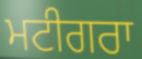
ਮਟੀਗਰਾ